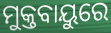
ମୁକ୍ତବାୟୁରେ